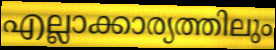
എല്ലാക്കാര്യത്തിലും